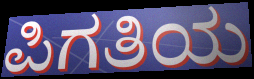
ಪಿಗತಿಯ